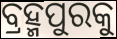
ବ୍ରହ୍ମପୁରକୁ